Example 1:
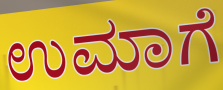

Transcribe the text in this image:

ಉಮಾಗೆ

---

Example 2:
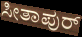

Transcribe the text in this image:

ಸೀತಾಪುರ್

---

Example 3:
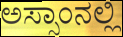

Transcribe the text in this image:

ಅಸ್ಸಾಂನಲ್ಲಿ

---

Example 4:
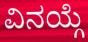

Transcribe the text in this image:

ವಿನಯ್ಗೆ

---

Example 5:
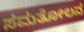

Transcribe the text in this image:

ಸಮತೋಲನ